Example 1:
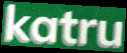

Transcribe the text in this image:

katru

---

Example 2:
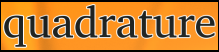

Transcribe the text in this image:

quadrature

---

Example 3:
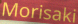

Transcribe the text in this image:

Morisaki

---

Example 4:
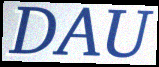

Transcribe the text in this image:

DAU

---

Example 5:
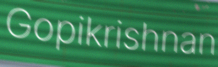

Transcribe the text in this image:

Gopikrishnan